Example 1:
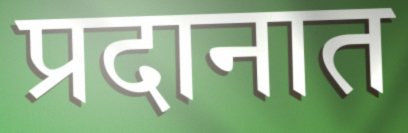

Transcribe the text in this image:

प्रदानात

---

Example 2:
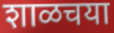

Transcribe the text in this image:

शाळचया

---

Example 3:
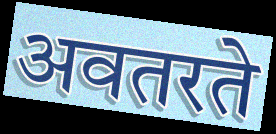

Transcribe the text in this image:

अवतरते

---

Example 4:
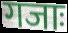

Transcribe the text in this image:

गजाः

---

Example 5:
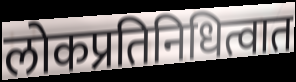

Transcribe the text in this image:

लोकप्रतिनिधित्वात